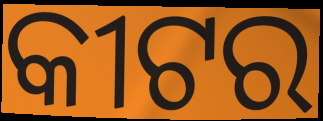
କୀଟର